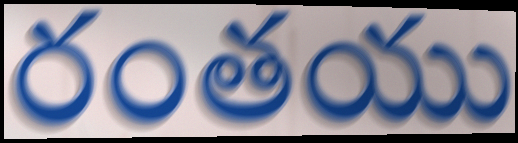
రంతయు